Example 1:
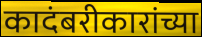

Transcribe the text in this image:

कादंबरीकारांच्या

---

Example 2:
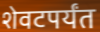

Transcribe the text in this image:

शेवटपर्यंत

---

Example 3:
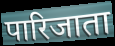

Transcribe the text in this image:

पारिजाता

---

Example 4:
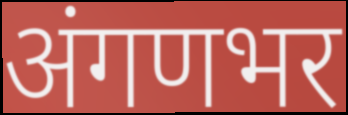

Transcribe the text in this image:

अंगणभर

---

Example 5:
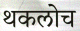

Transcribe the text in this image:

थकलोच